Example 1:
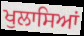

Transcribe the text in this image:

ਖੁਲਾਸਿਆਂ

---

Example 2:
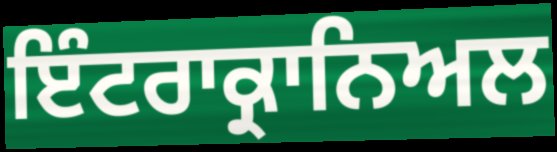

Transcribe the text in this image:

ਇੰਟਰਾਕ੍ਰਾਨਿਅਲ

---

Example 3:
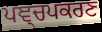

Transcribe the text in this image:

ਪਞ੍ਚਪਕਰਣ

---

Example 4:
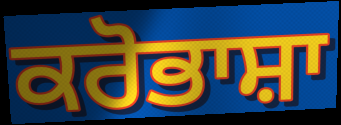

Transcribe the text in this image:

ਕਰੋਭਾਸ਼ਾ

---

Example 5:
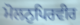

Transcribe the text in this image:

ਮੋਲਨੁਪਿਰਵੀਰ